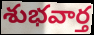
శుభవార్త